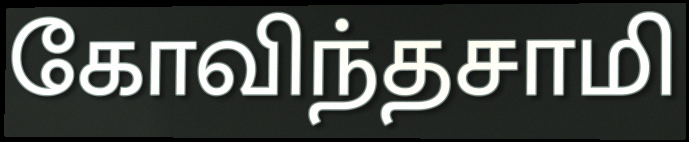
கோவிந்தசாமி